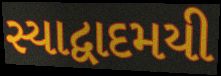
સ્યાદ્વાદમયી